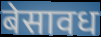
बेसावध